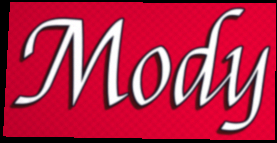
Mody